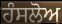
ਹੰਸਲੋਅ